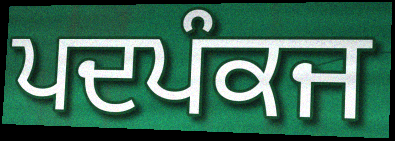
ਪਦਪੰਕਜ